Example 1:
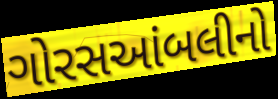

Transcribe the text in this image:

ગોરસઆંબલીનો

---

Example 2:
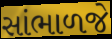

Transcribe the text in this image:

સાંભાળજે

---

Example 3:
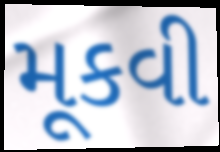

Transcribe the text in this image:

મૂકવી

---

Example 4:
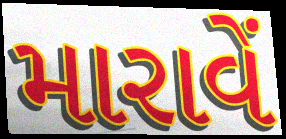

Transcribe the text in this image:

મારાવેં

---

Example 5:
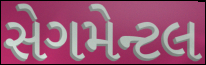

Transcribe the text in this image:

સેગમેન્ટલ